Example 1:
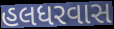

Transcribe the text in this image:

હલધરવાસ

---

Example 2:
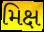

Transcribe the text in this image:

મિક્ષ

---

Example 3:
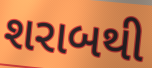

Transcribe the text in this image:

શરાબથી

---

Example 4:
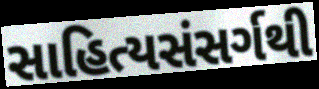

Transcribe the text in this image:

સાહિત્યસંસર્ગથી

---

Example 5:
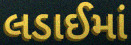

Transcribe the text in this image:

લડાઈમાં